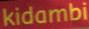
kidambi